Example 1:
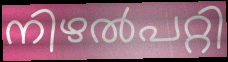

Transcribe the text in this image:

നിഴൽപറ്റി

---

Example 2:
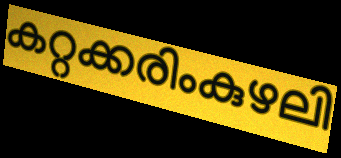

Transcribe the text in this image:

കറ്റക്കരിംകുഴലി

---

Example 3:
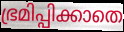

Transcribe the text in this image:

ഭ്രമിപ്പിക്കാതെ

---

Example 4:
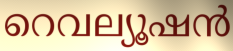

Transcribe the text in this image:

റെവല്യൂഷൻ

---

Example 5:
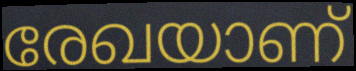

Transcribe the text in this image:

രേഖയാണ്